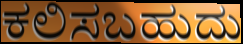
ಕಲಿಸಬಹುದು